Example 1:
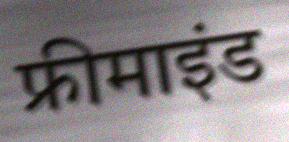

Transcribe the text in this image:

फ्रीमाइंड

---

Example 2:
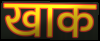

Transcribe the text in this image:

खाक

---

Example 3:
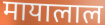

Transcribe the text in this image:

मायालाल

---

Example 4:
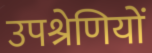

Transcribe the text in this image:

उपश्रेणियों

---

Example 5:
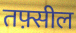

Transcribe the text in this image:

तफ़्सील